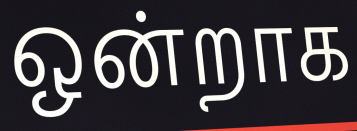
ஒன்றாக